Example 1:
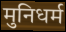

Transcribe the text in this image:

मुनिधर्म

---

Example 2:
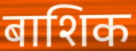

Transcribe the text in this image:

बाशिक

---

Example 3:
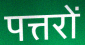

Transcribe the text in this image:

पत्तरों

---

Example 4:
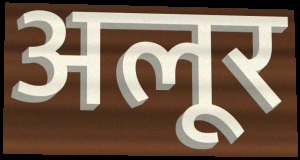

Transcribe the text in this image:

अलूर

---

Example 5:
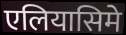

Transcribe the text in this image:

एलियासिमे